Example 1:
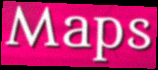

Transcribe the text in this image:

Maps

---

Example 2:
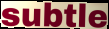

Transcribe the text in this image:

subtle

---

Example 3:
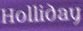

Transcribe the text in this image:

Holliday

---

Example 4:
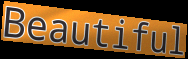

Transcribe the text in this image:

Beautiful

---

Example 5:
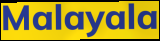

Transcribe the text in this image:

Malayala